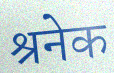
श्रनेक